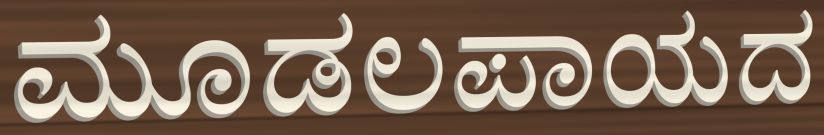
ಮೂಡಲಪಾಯದ